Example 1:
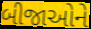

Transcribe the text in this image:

બીજાઓને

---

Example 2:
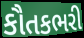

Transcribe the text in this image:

કૌતકભરી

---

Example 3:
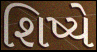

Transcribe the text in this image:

શિષ્યે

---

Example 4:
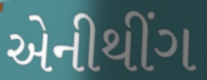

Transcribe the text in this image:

એનીથીંગ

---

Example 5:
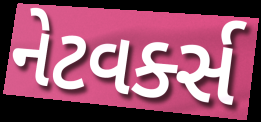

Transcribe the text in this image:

નેટવર્ક્સ